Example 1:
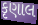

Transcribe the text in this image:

કૃણાલ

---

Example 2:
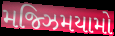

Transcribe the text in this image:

મજ્ઝિમયામો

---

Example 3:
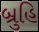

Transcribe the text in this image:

બ્રુહિ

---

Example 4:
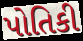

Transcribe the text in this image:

પોતિકી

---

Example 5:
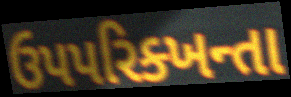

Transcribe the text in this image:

ઉપપરિક્ખન્તા